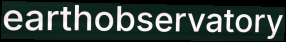
earthobservatory